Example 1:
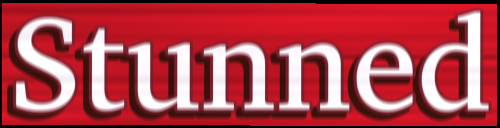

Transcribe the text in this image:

Stunned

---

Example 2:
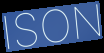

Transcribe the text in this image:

ISON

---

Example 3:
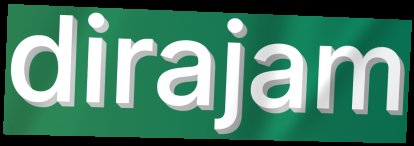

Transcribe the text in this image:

dirajam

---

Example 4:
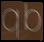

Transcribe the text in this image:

qb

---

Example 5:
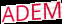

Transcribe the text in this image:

ADEM